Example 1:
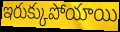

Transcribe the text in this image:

ఇరుక్కుపోయాయి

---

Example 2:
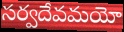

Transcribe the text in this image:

సర్వదేవమయో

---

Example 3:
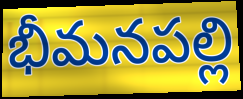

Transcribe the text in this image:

భీమనపల్లి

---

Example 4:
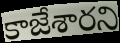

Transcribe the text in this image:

కాజేశారని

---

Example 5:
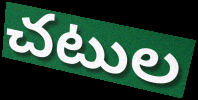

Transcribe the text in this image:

చటుల